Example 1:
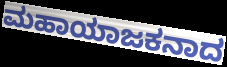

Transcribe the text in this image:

ಮಹಾಯಾಜಕನಾದ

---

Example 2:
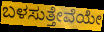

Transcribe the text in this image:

ಬಳಸುತ್ತೇವೆಯೇ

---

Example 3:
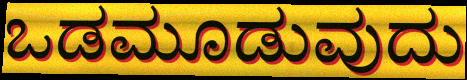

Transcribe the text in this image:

ಒಡಮೂಡುವುದು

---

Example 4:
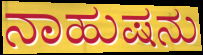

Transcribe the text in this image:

ನಾಹುಷನು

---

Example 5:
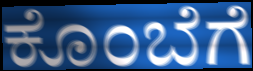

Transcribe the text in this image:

ಕೊಂಬೆಗೆ